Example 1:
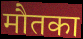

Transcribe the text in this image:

मौतका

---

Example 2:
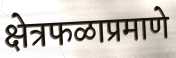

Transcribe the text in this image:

क्षेत्रफळाप्रमाणे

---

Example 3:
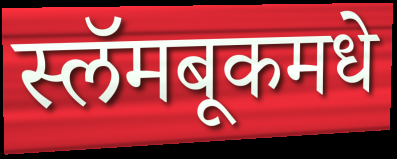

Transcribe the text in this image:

स्लॅमबूकमधे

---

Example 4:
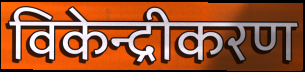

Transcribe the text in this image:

विकेन्द्रीकरण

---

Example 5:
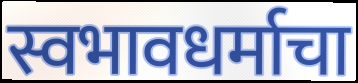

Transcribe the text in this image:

स्वभावधर्माचा